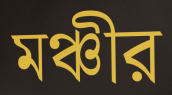
মঞ্চীর